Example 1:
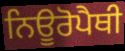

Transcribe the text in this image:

ਨਿਊਰੋਪੈਥੀ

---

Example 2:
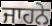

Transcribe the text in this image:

ਜਾਹਨੇ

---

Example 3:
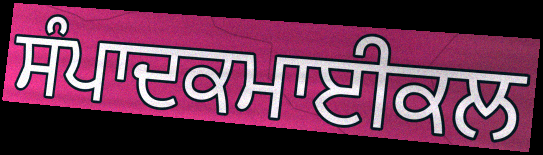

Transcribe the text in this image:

ਸੰਪਾਦਕਮਾਈਕਲ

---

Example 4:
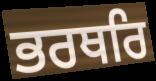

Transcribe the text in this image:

ਭਰਥਰਿ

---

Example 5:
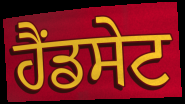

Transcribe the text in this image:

ਹੈਂਡਸੇਟ